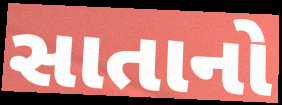
સાતાનો